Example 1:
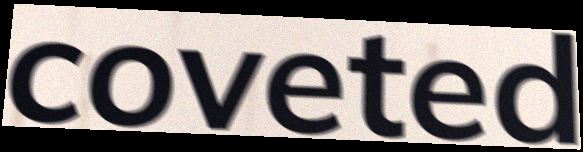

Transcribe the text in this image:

coveted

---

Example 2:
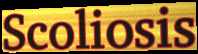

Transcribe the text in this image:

Scoliosis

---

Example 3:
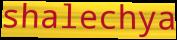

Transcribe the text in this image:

shalechya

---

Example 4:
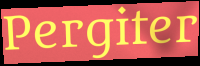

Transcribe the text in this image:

Pergiter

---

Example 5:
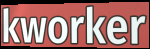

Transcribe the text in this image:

kworker